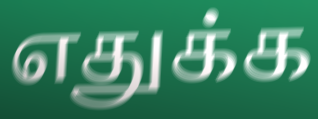
எதுக்க